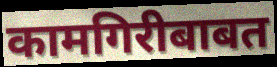
कामगिरीबाबत